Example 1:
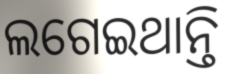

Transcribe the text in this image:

ଲଗେଇଥାନ୍ତି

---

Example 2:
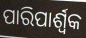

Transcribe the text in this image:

ପାରିପାର୍ଶ୍ଵକ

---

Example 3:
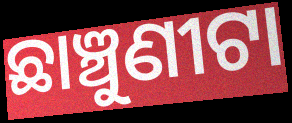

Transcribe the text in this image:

ଛାଞ୍ଚୁଣୀଟା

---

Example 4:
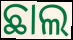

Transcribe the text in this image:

ଛାଲ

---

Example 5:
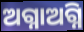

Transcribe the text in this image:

ଅଗ୍ନାଅଗ୍ନି